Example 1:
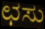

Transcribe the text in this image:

ಛಸು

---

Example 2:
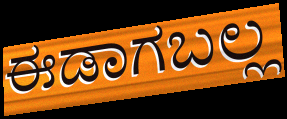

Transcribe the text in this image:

ಈಡಾಗಬಲ್ಲ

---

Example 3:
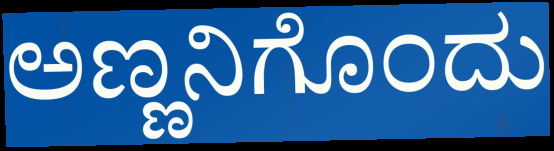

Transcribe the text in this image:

ಅಣ್ಣನಿಗೊಂದು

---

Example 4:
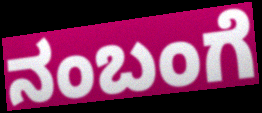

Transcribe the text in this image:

ನಂಬಂಗೆ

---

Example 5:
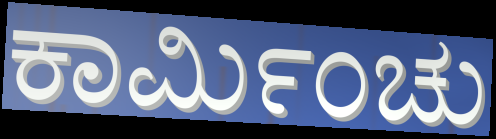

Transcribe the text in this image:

ಕಾರ್ಮಿಂಚು